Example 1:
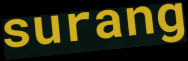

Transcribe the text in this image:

surang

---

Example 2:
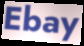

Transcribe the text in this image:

Ebay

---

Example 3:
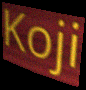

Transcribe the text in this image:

Koji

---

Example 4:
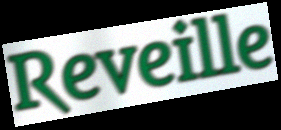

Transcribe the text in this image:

Reveille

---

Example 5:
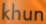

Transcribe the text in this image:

khun